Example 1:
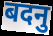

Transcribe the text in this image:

बदनु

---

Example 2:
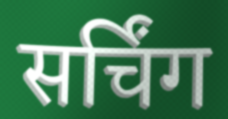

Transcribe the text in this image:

सर्चिंग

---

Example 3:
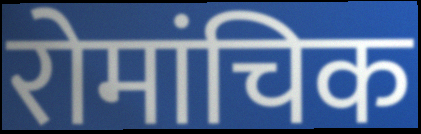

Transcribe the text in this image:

रोमांचिक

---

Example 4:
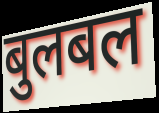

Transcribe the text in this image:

बुलबल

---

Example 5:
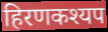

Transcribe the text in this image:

हिरणकश्यप